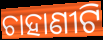
ଚାହାଣୀଟି